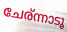
ചേര്ന്നാടൂ